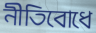
নীতিবোধে